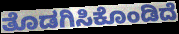
ತೊಡಗಿಸಿಕೊಂಡಿದೆ